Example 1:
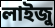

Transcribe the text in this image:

লাইজু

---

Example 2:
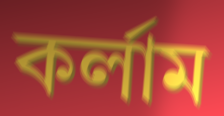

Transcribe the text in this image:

কর্লাম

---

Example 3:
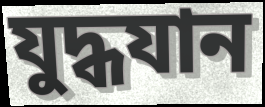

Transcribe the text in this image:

যুদ্ধযান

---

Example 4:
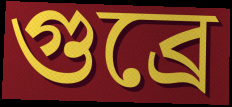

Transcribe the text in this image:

গুব্রে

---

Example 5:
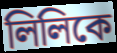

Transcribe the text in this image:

লিলিকে